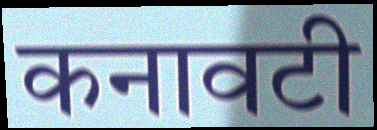
कनावटी